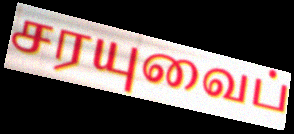
சரயுவைப்